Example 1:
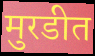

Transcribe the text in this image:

मुरडीत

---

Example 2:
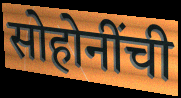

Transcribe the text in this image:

सोहोनींची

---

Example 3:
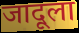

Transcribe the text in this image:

जादूला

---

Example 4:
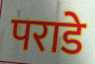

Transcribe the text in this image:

पराडे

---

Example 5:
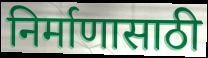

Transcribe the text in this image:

निर्माणासाठी